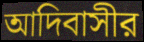
আদিবাসীর